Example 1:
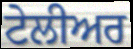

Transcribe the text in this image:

ਟੇਲੀਅਰ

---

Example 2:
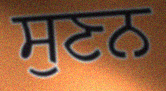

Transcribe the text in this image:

ਸੁਣਨ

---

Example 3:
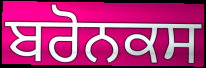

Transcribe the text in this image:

ਬਰੋਨਕਸ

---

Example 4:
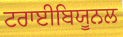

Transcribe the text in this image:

ਟਰਾਈਬਿਯੂਨਲ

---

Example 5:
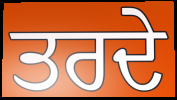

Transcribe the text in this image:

ਤਰਦੇ